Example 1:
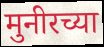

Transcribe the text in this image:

मुनीरच्या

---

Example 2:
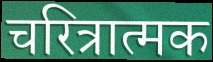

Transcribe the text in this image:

चरित्रात्मक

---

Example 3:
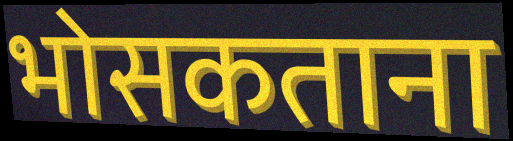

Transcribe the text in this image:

भोसकताना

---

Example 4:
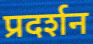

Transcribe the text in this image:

प्रदर्शन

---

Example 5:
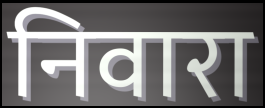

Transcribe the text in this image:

निवारा